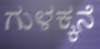
ಗುಳಕ್ಕನೆ